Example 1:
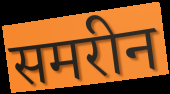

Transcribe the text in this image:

समरीन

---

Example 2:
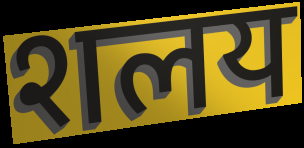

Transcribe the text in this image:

शलय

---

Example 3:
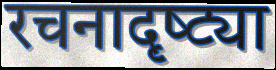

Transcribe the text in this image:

रचनादृष्ट्या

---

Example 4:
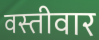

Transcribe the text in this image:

वस्तीवार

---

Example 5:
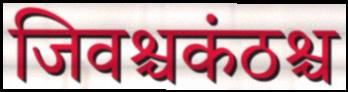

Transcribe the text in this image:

जिवश्चकंठश्च